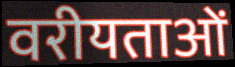
वरीयताओं